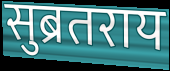
सुब्रतराय